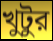
খুটুর